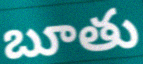
బూతు